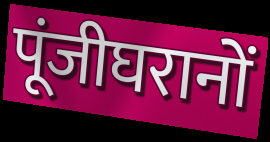
पूंजीघरानों